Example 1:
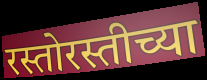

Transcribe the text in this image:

रस्तोरस्तीच्या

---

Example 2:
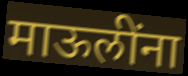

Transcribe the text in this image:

माऊलींना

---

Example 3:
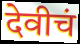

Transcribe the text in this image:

देवीचं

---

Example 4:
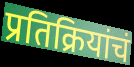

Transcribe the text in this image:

प्रतिक्रियांचं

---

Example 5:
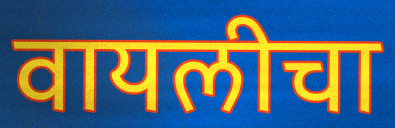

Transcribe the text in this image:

वायलीचा